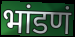
भांडणं